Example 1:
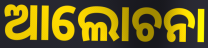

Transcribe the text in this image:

ଆଲୋଚନା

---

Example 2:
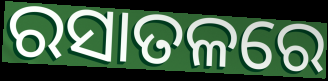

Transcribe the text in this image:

ରସାତଳରେ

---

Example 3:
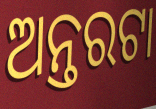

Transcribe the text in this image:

ଅନ୍ତରଟା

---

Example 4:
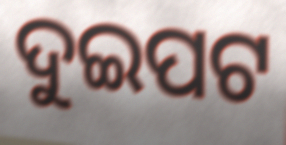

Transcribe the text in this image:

ଦୁଇପଟ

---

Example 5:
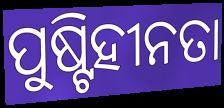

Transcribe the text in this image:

ପୁଷ୍ଟିହୀନତା